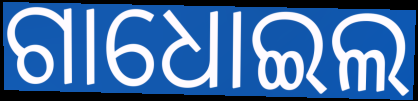
ଗାଧୋଇଲ